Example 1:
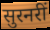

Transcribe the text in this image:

सुरनरीं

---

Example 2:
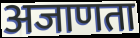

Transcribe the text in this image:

अजाणता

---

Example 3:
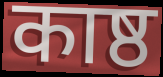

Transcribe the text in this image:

काष्ठ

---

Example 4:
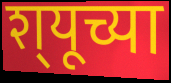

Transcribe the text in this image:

श्यूच्या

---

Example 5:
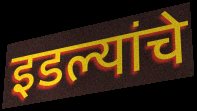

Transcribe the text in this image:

इडल्यांचे